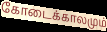
கோடைக்காலமும்